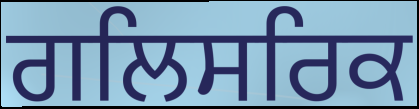
ਗਲਿਸਰਿਕ